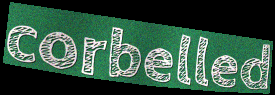
corbelled